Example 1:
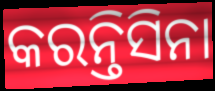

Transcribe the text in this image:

କରନ୍ତିସିନା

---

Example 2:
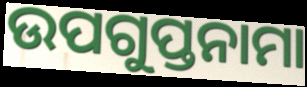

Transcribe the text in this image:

ଉପଗୁପ୍ତନାମା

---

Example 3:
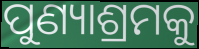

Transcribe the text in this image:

ପୁଣ୍ୟାଶ୍ରମକୁ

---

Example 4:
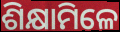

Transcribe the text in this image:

ଶିକ୍ଷାମିଳେ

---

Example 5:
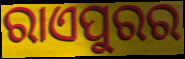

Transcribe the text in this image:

ରାଏପୁରର